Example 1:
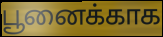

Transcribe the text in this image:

பூனைக்காக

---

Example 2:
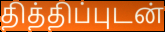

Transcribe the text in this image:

தித்திப்புடன்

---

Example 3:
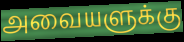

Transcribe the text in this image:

அவையளுக்கு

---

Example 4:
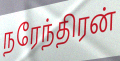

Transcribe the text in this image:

நரேந்திரன்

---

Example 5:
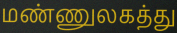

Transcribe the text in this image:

மண்ணுலகத்து